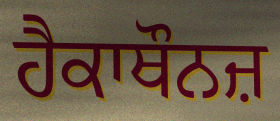
ਹੈਕਾਥੌਨਜ਼